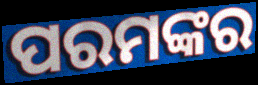
ପରମଙ୍କର